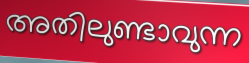
അതിലുണ്ടാവുന്ന